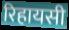
रिहायसी